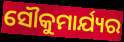
ସୌକୁମାର୍ଯ୍ୟର